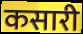
कसारी